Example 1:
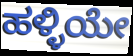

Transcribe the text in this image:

ಹಳ್ಳಿಯೇ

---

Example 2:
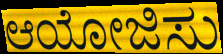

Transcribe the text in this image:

ಆಯೋಜಿಸು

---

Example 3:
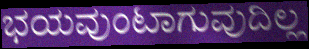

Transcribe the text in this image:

ಭಯವುಂಟಾಗುವುದಿಲ್ಲ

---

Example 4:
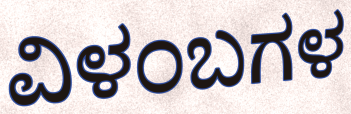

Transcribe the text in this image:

ವಿಳಂಬಗಳ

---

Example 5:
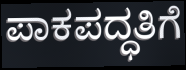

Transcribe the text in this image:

ಪಾಕಪದ್ಧತಿಗೆ